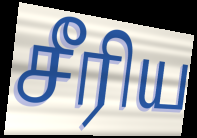
சீரிய